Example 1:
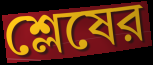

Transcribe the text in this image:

শ্লেষের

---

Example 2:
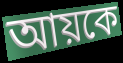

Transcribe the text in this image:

আয়কে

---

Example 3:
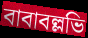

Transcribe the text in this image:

বাবাবল্লভি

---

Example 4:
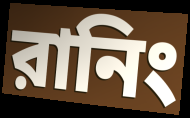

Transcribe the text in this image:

রানিং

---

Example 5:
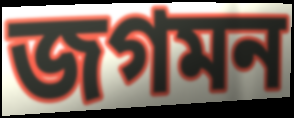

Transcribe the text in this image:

জগমন